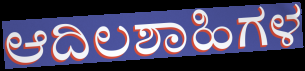
ಆದಿಲಶಾಹಿಗಳ